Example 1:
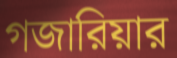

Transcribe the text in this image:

গজারিয়ার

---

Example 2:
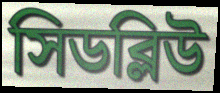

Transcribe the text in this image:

সিডব্লিউ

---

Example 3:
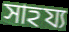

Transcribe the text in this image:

সাহয্য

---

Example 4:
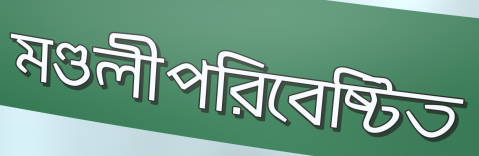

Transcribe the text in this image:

মণ্ডলীপরিবেষ্টিত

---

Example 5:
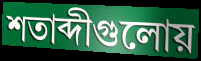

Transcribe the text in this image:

শতাব্দীগুলোয়